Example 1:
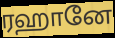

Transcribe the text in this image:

ரஹானே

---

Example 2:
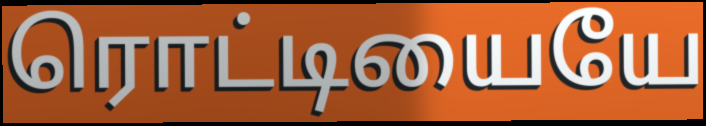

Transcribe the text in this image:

ரொட்டியையே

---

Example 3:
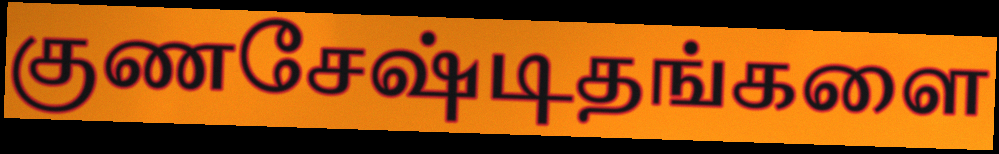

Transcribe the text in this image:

குணசேஷ்டிதங்களை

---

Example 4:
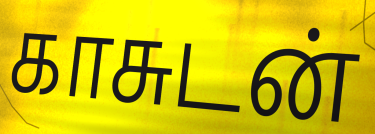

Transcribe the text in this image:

காசுடன்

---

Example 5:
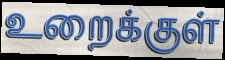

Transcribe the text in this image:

உறைக்குள்